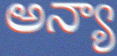
అన్యా